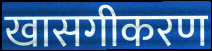
खासगीकरण